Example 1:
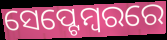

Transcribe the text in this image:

ସେପ୍ଟେମ୍ୱରରେ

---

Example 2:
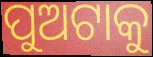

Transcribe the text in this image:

ପୁଅଟାକୁ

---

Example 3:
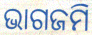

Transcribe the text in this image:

ଭାଗଜମି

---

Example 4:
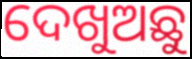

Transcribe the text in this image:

ଦେଖୁଅଛୁ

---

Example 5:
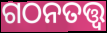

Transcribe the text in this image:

ଗଠନତତ୍ତ୍ୱ